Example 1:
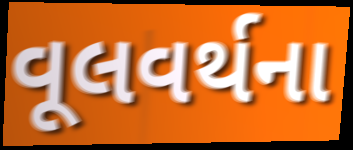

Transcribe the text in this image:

વૂલવર્થના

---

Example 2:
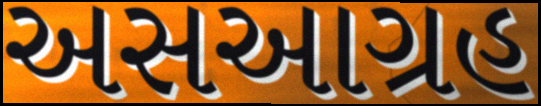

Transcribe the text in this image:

અસઆગ્રહ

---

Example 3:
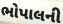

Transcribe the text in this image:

ભોપાલની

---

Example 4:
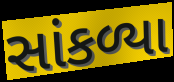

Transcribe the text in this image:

સાંકળ્યા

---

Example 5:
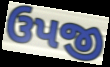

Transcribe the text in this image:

ઉપજી